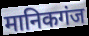
मानिकगंज